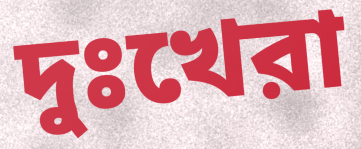
দুঃখেরা